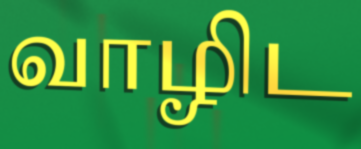
வாழிட